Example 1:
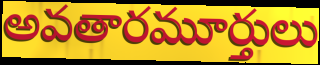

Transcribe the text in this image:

అవతారమూర్తులు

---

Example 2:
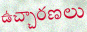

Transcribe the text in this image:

ఉచ్చారణలు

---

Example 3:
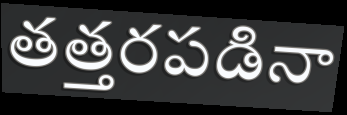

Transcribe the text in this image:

తత్తరపడినా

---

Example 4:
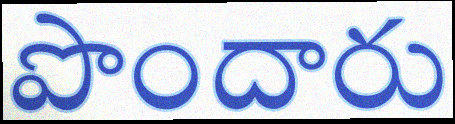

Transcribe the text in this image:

పొందారు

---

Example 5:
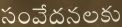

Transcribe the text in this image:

సంవేదనలకు